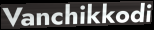
Vanchikkodi